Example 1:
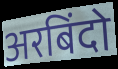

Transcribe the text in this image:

अरबिंदो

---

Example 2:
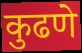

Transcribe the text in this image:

कुढणे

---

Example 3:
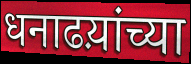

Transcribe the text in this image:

धनाढय़ांच्या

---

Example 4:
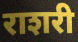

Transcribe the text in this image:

राशरी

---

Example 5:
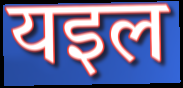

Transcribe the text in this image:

यइल